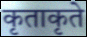
कृताकृते